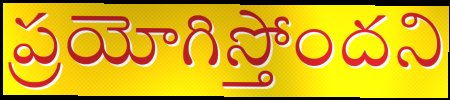
ప్రయోగిస్తోందని